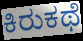
ಕಿರುಕಥೆ